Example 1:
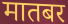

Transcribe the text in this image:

मातबर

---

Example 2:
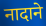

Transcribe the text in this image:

नादाने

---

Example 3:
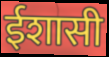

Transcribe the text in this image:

ईशासी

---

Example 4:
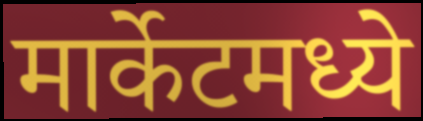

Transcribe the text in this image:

मार्केटमध्ये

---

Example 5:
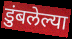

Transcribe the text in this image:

डुंबलेल्या